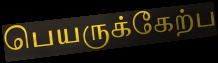
பெயருக்கேற்ப